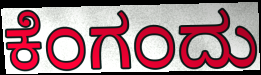
ಕೆಂಗಂದು